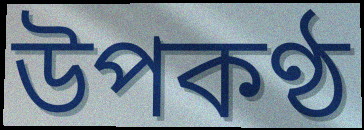
উপকণ্ঠ